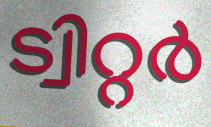
ട്വിറ്റർ